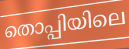
തൊപ്പിയിലെ